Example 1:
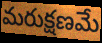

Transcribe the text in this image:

మరుక్షణమే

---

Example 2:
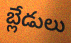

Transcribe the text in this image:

బ్లేడులు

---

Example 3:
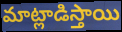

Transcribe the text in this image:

మాట్లాడిస్తాయి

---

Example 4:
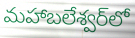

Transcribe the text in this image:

మహాబలేశ్వర్‌లో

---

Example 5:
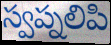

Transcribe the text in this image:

స్వప్నలిపి